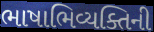
ભાષાભિવ્યક્તિની